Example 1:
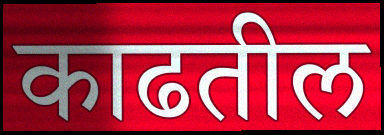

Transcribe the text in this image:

काढतील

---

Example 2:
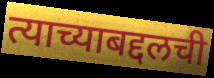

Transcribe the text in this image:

त्याच्याबद्दलची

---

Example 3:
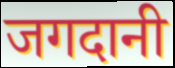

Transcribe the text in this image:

जगदानी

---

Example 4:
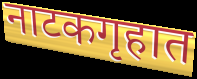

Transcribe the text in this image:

नाटकगृहात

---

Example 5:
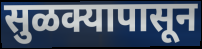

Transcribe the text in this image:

सुळक्यापासून